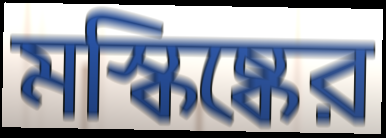
মস্কিষ্কের